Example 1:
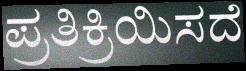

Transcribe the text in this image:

ಪ್ರತಿಕ್ರಿಯಿಸದೆ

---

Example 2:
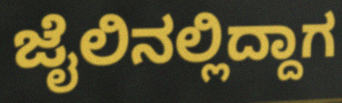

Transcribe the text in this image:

ಜೈಲಿನಲ್ಲಿದ್ದಾಗ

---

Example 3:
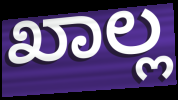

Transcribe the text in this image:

ಖಾಲ್ಲ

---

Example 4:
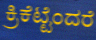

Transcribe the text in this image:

ಕ್ರಿಕೆಟ್ಟೆಂದರೆ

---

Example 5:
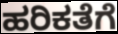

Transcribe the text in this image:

ಹರಿಕತೆಗೆ